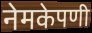
नेमकेपणी